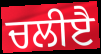
ਚਲੀੲੈ